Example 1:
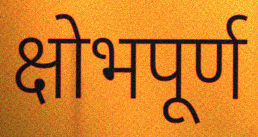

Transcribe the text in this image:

क्षोभपूर्ण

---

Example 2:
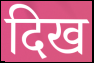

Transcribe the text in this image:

दिख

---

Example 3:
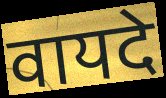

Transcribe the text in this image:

वायदे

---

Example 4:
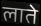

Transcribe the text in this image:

लाते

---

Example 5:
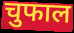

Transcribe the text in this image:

चुफाल